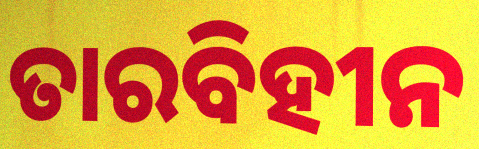
ତାରବିହୀନ